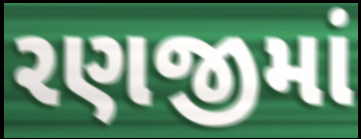
રણજીમાં